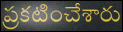
ప్రకటించేశారు